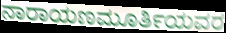
ನಾರಾಯಣಮೂರ್ತಿಯವರ